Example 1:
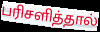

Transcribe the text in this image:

பரிசளித்தால்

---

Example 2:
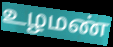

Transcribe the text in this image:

உழமண்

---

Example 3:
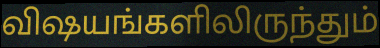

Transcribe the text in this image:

விஷயங்களிலிருந்தும்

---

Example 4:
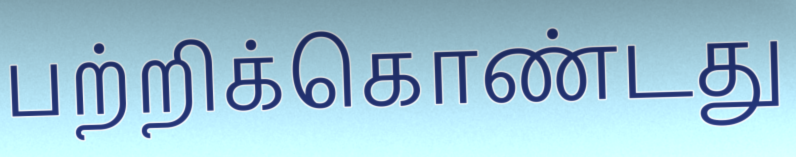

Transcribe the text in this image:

பற்றிக்கொண்டது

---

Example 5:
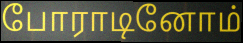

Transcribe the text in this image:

போராடினோம்